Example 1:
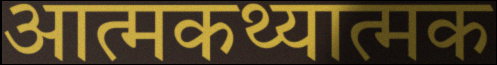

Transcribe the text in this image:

आत्मकथ्यात्मक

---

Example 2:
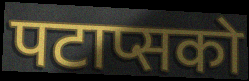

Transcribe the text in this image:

पटाप्सको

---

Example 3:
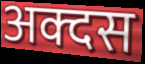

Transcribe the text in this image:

अक्दस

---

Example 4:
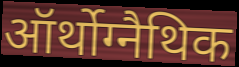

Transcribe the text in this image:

ऑर्थोग्नैथिक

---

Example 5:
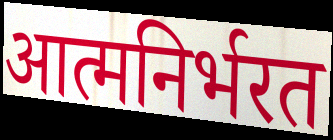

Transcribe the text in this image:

आत्मनिर्भरत